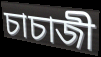
চাচাজী